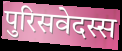
पुरिसवेदस्स